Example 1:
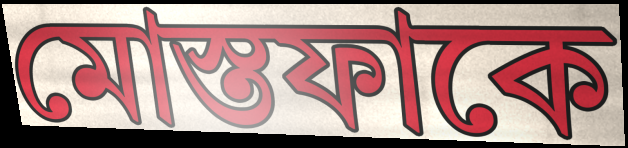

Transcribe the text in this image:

মোস্তফাকে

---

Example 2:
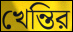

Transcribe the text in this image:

খেন্তির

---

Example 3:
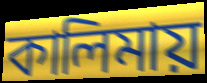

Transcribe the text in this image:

কালিমায়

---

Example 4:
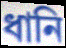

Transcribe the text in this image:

ধানি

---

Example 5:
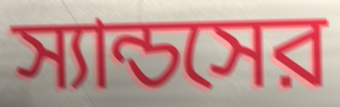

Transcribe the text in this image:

স্যান্ডসের